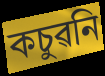
কচুৱনি